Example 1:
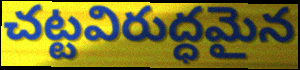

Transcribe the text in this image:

చట్టవిరుద్ధమైన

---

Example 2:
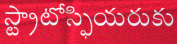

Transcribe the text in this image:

స్ట్రాటోస్ఫియరుకు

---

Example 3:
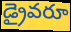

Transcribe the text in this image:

డ్రైవరూ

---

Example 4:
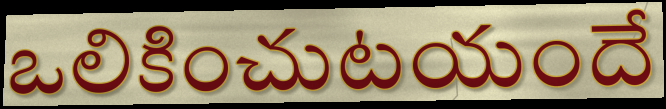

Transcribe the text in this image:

ఒలికించుటయందే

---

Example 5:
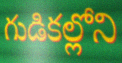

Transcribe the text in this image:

గుడికల్లోని